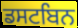
ਡਸਟਬਿਨ